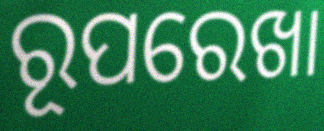
ରୂପରେଖା